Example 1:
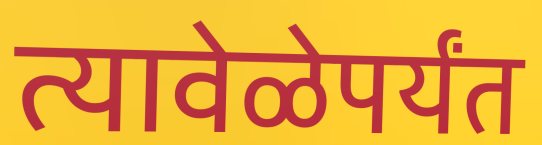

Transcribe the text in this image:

त्यावेळेपर्यंत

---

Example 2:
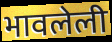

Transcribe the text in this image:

भावलेली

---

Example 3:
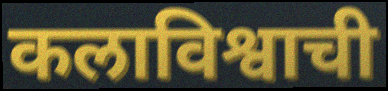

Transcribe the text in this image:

कलाविश्वाची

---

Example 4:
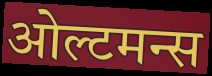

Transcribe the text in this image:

ओल्टमन्स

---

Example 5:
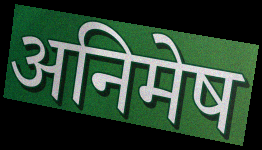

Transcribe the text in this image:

अनिमेष